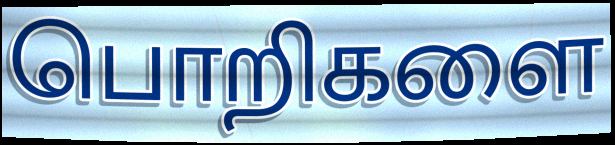
பொறிகளை